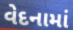
વેદનામાં